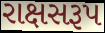
રાક્ષસરૂપ